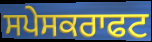
ਸਪੇਸਕਰਾਫਟ